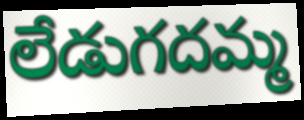
లేడుగదమ్మ